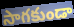
సాగకుండా